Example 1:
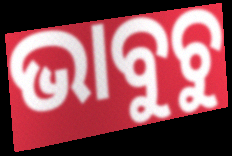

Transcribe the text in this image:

ଭାବୁଚୁ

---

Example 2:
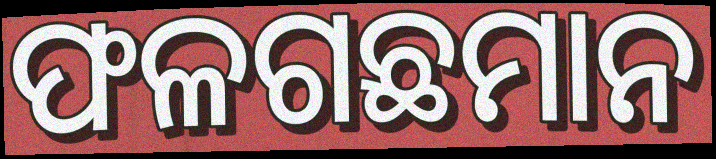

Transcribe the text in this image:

ଫଳଗଛମାନ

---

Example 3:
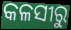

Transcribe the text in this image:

କଳସୀରୁ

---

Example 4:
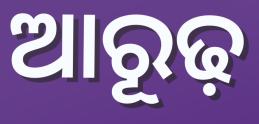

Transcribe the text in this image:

ଆରୂଢ଼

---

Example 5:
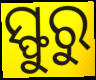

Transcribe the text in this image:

ସ୍ଫୁରୁ